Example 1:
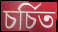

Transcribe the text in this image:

চর্চিত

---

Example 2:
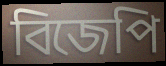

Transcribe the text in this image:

বিজেপি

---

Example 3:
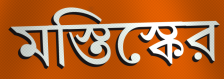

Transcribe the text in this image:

মস্তিস্কের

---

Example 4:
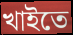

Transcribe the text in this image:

খাইতে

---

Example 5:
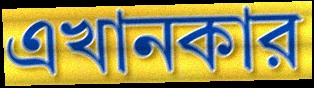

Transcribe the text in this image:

এখানকার